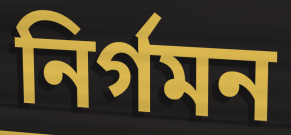
নির্গমন